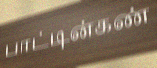
பாட்டின்கண்